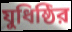
যুধিষ্ঠির